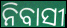
ନିବାସୀ